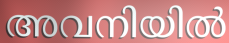
അവനിയിൽ